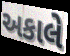
અકાલે